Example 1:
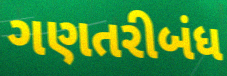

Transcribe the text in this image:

ગણતરીબંધ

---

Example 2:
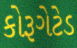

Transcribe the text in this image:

કોરૂગેટેડ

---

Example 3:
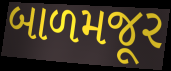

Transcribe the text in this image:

બાળમજૂર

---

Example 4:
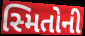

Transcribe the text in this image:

સ્મિતોની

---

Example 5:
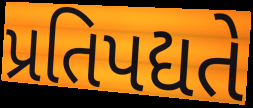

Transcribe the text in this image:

પ્રતિપદ્યતે